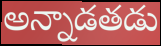
అన్నాడతడు